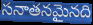
సనాతనమైనది